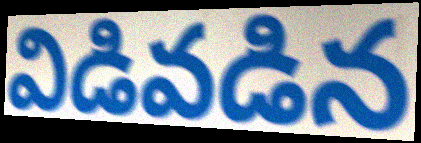
విడివడిన